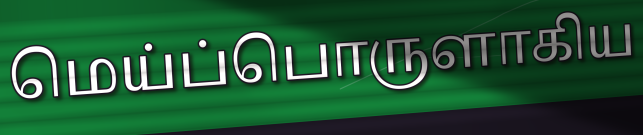
மெய்ப்பொருளாகிய